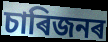
চাৰিজনৰ